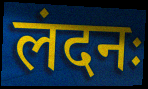
लंदनः